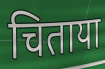
चिताया